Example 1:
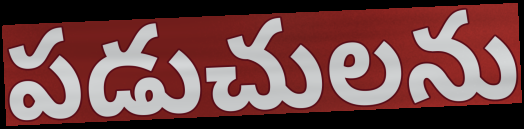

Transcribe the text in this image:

పడుచులను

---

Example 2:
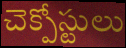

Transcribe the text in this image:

చెక్పోస్టులు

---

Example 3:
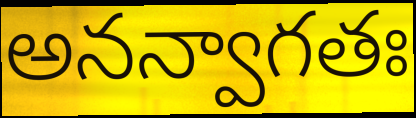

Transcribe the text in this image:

అనన్వాగతః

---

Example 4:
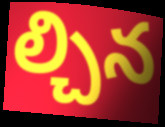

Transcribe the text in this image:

ల్చిన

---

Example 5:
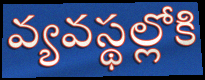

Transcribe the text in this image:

వ్యవస్థల్లోకి